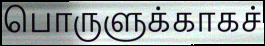
பொருளுக்காகச்